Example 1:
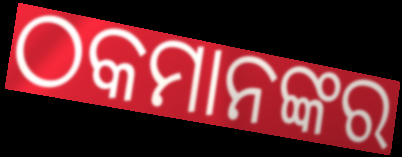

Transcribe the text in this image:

ଠକମାନଙ୍କର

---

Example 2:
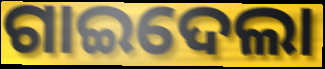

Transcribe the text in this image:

ଗାଇଦେଲା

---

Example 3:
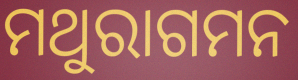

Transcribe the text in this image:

ମଥୁରାଗମନ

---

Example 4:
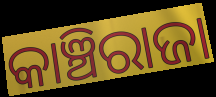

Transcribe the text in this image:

କାଞ୍ଚିରାଜା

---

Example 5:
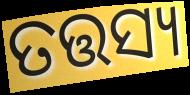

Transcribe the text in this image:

ତତ୍ତସ୍ୟ